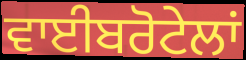
ਵਾਈਬਰੋਟੇਲਾਂ